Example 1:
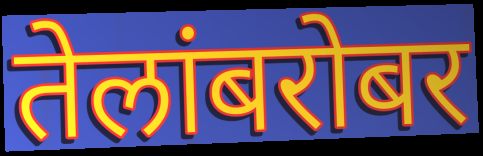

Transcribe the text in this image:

तेलांबरोबर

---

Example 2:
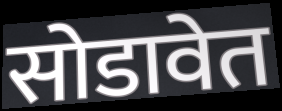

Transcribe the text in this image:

सोडावेत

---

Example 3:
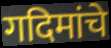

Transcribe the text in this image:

गदिमांचे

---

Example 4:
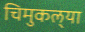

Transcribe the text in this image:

चिमुकल्या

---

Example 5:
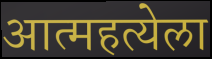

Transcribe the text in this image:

आत्महत्येला